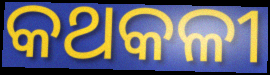
କଥକଳୀ